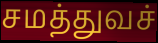
சமத்துவச்